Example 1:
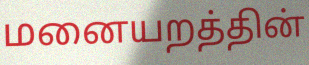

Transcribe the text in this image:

மனையறத்தின்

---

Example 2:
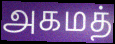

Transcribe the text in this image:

அகமத்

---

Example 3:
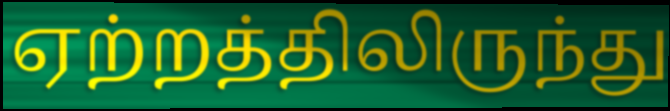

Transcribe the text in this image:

ஏற்றத்திலிருந்து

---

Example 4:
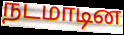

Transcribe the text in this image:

நடமாடின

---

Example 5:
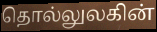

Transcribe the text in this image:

தொல்லுலகின்